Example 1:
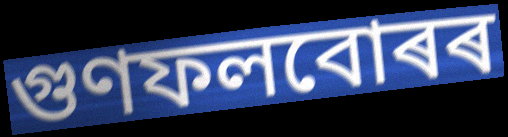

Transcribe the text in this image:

গুণফলবোৰৰ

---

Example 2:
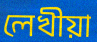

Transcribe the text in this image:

লেখীয়া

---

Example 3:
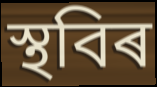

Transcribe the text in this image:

স্থবিৰ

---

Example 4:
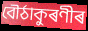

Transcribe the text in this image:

বৌঠাকুৰণীৰ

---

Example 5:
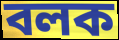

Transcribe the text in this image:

বলক